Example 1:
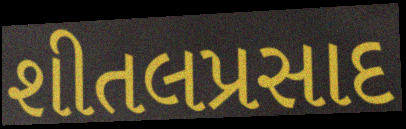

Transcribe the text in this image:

શીતલપ્રસાદ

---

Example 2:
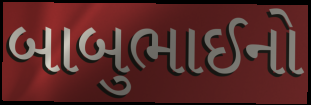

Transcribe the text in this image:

બાબુભાઈનો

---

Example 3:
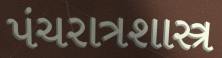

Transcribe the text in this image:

પંચરાત્રશાસ્ત્ર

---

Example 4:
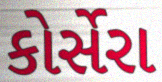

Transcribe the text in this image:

કોર્સેરા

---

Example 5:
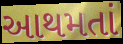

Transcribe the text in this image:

આથમતાં